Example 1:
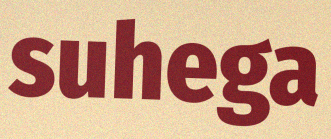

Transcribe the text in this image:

suhega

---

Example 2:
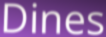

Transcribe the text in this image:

Dines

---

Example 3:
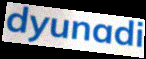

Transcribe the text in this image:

dyunadi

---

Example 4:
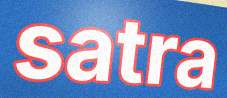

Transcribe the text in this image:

satra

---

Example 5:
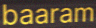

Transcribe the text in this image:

baaram